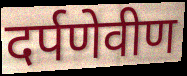
दर्पणेवीण